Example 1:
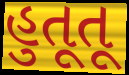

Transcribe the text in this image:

હુતૂતૂ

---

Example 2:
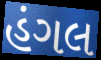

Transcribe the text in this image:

હંગલ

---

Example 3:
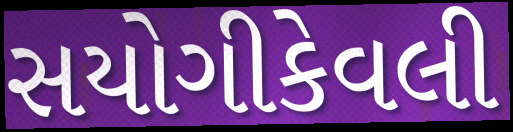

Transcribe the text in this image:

સયોગીકેવલી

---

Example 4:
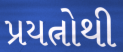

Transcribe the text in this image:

પ્રયત્નોથી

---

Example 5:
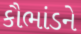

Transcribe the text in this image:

કૌભાંડને